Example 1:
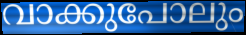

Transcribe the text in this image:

വാക്കുപോലും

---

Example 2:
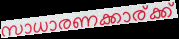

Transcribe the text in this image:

സാധാരണക്കാര്ക്ക്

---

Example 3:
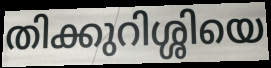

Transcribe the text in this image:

തിക്കുറിശ്ശിയെ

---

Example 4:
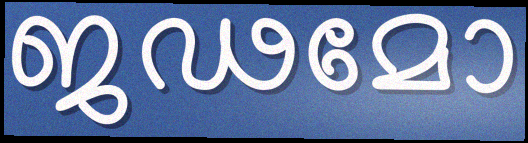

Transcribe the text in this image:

ജഢമോ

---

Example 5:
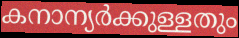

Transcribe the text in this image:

കനാന്യർക്കുള്ളതും